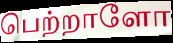
பெற்றாளோ